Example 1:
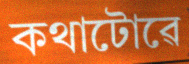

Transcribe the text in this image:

কথাটোৱে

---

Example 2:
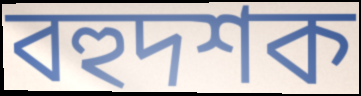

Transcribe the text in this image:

বহুদশক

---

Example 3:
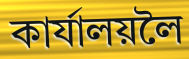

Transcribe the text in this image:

কাৰ্যালয়লৈ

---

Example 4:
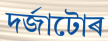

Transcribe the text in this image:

দৰ্জাটোৰ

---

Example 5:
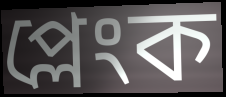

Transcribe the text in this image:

প্লেংক